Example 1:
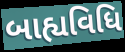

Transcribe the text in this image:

બાહ્યવિધિ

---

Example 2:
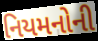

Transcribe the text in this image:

નિયમનોની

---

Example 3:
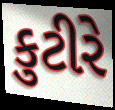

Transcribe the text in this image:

કુટીરે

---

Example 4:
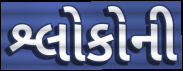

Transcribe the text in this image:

શ્લોકોની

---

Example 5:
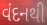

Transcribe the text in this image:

વંદનથી